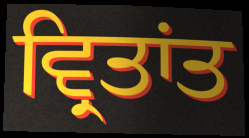
ਵ੍ਰਿਤਾਂਤ